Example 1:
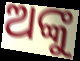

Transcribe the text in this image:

ଅଙ୍କୁ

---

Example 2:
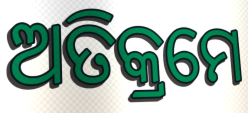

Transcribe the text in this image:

ଅତିକ୍ରମେ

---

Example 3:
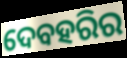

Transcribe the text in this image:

ଦେବହରିର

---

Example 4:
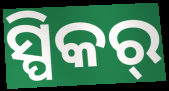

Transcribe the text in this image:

ସ୍ପିକର୍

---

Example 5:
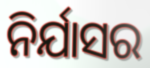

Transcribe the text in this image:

ନିର୍ଯାସର